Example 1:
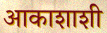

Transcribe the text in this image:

आकाशाशी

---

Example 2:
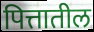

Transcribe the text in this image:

पित्तातील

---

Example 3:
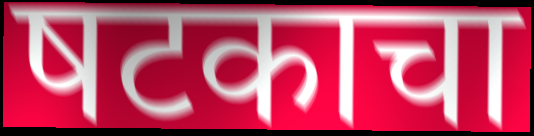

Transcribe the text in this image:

षटकाचा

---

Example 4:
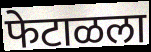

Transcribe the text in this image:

फेटाळला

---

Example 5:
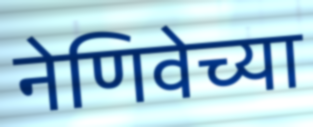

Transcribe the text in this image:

नेणिवेच्या